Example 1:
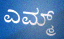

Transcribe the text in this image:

ಎಮ್ಮ್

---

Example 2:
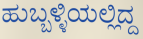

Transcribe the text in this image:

ಹುಬ್ಬಳ್ಳಿಯಲ್ಲಿದ್ದ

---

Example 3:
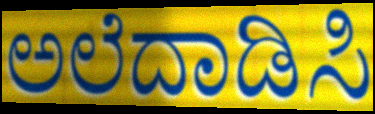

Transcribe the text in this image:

ಅಲೆದಾಡಿಸಿ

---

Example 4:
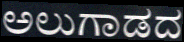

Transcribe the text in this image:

ಅಲುಗಾಡದ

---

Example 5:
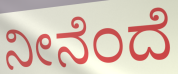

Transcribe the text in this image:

ನೀನೆಂದೆ